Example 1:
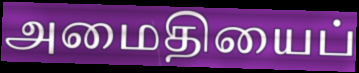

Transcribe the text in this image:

அமைதியைப்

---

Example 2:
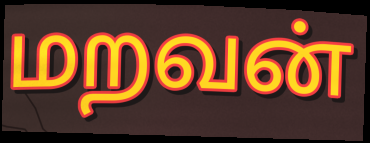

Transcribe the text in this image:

மறவன்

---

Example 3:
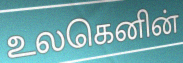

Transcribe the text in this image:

உலகெனின்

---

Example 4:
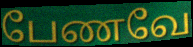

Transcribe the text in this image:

பேணவே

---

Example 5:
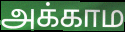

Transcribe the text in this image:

அக்காம